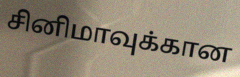
சினிமாவுக்கான